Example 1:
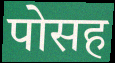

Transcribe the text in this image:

पोसह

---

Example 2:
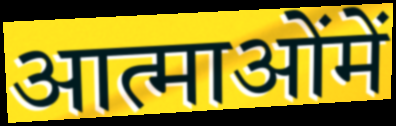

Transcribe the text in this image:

आत्माओंमें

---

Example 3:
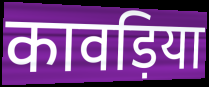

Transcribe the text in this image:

कावड़िया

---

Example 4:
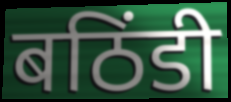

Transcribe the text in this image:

बठिंडी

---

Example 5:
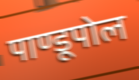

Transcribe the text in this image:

पाण्डूपोल